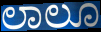
ಲಾಲೂ